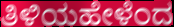
ತಿಳಿಯಹೇಳೆಂದ